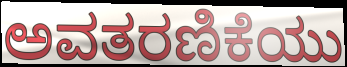
ಅವತರಣಿಕೆಯು